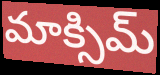
మాక్సిమ్